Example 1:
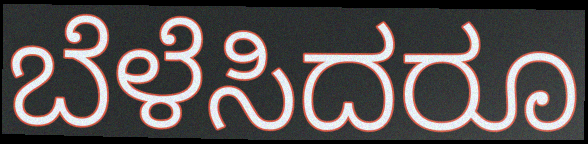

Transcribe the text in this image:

ಬೆಳೆಸಿದರೂ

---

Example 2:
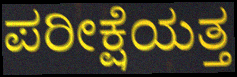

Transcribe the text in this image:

ಪರೀಕ್ಷೆಯತ್ತ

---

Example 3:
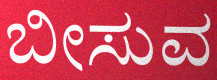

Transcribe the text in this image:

ಬೀಸುವ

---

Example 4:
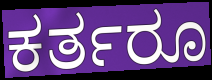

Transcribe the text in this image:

ಕರ್ತರೂ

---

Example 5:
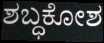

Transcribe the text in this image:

ಶಬ್ಧಕೋಶ